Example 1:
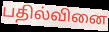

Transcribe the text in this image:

பதில்வினை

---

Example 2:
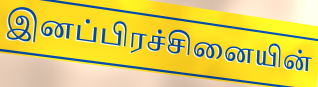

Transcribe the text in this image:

இனப்பிரச்சினையின்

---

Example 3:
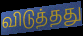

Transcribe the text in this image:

விடுத்தது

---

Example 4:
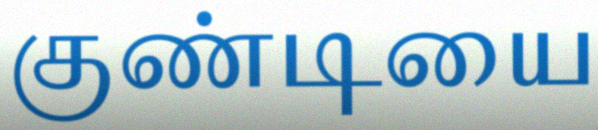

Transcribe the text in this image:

குண்டியை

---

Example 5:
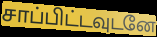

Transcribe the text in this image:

சாப்பிட்டவுடனே